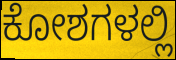
ಕೋಶಗಳಲ್ಲಿ